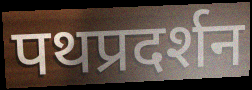
पथप्रदर्शन